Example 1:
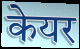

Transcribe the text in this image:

केयर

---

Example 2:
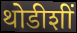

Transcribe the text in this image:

थोडीशीं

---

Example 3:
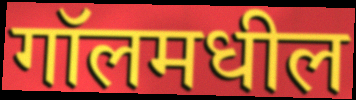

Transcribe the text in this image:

गॉलमधील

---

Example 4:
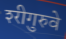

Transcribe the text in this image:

श्रीगुरुवे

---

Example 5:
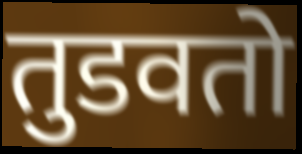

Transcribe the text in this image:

तुडवतो